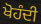
ਖੋਹੰਦੀ